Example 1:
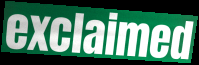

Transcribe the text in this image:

exclaimed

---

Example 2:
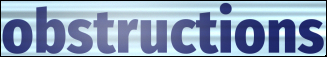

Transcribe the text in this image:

obstructions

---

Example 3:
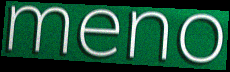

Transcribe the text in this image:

meno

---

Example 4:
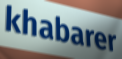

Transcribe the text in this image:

khabarer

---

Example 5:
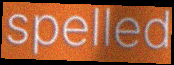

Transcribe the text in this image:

spelled